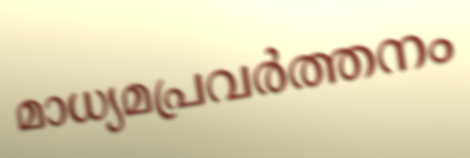
മാധ്യമപ്രവർത്തനം